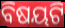
ବିଷୟଟି